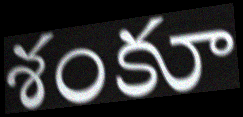
శంకూ